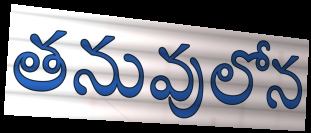
తనువులోన